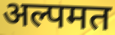
अल्पमत